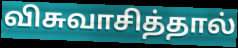
விசுவாசித்தால்